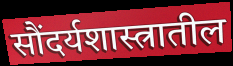
सौंदर्यशास्त्रातील